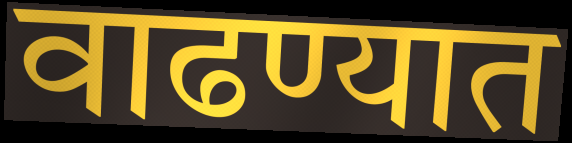
वाढण्यात